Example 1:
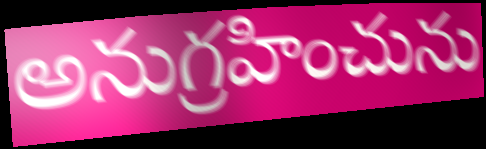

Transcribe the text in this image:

అనుగ్రహించును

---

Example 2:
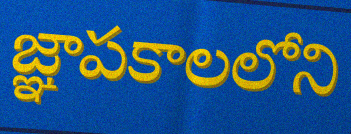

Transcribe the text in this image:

జ్ఞాపకాలలోని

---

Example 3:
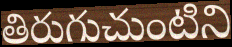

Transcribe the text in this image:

తిరుగుచుంటిని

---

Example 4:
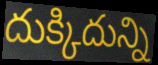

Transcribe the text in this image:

దుక్కిదున్ని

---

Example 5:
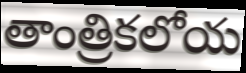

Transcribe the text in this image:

తాంత్రికలోయ